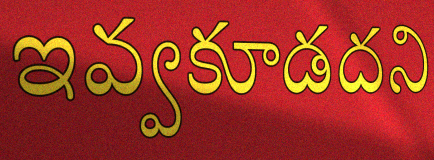
ఇవ్వకూడదని